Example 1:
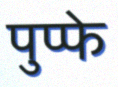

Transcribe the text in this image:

पुप्फे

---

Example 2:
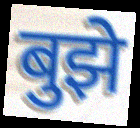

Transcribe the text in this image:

बुझे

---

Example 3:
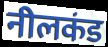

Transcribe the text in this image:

नीलकंड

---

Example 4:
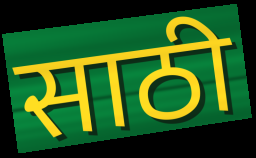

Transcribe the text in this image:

साठी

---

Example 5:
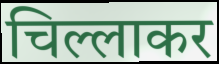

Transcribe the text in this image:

चिल्‍लाकर